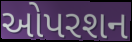
ઓપરશન